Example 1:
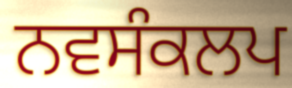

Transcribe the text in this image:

ਨਵਸੰਕਲਪ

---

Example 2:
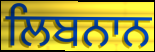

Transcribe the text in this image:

ਲਿਬਨਾਨ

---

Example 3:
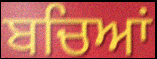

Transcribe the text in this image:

ਬਚਿਆਂ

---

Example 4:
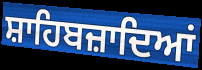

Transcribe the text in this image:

ਸ਼ਾਹਿਬਜ਼ਾਦਿਆਂ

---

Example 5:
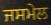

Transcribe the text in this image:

ਜਸਮੇਲ